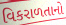
વિકરાળતાનો